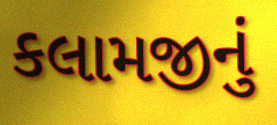
કલામજીનું